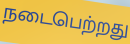
நடைபெற்றது